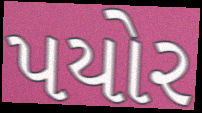
પયોર